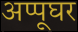
अप्पूघर